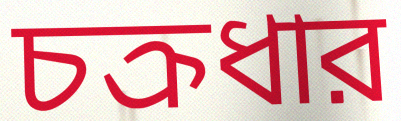
চক্রধার